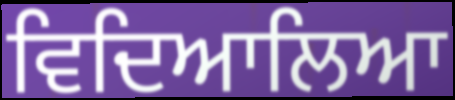
ਵਿਦਿਆਲਿਆ